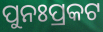
ପୁନଃପ୍ରକଟ